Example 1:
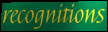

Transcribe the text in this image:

recognitions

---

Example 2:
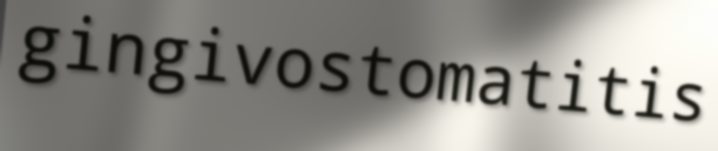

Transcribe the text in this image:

gingivostomatitis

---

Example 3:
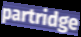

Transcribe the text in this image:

partridge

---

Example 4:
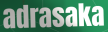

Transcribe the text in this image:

adrasaka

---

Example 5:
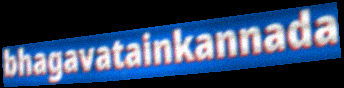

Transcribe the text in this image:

bhagavatainkannada